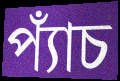
প্যাঁচ